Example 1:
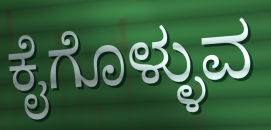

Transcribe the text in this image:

ಕೈಗೊಳ್ಳುವ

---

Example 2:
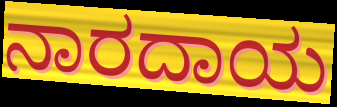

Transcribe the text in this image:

ನಾರದಾಯ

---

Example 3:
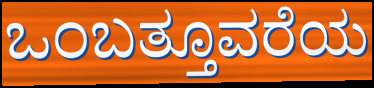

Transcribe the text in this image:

ಒಂಬತ್ತೂವರೆಯ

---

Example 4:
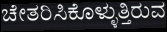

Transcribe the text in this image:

ಚೇತರಿಸಿಕೊಳ್ಳುತ್ತಿರುವ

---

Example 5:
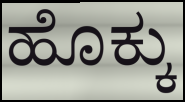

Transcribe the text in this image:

ಹೊಕ್ಕು